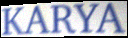
KARYA